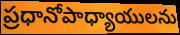
ప్రధానోపాధ్యాయులను